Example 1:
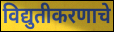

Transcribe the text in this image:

विद्युतीकरणाचे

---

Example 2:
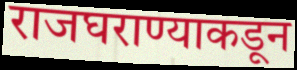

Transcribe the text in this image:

राजघराण्याकडून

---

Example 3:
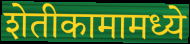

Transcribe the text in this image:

शेतीकामामध्ये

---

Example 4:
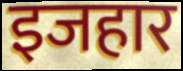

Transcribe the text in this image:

इजहार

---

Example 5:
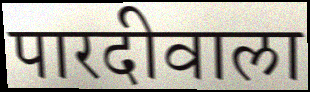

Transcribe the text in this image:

पारदीवाला